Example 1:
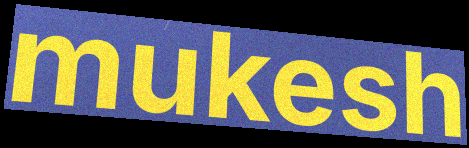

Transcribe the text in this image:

mukesh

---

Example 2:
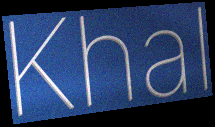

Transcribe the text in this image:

Khal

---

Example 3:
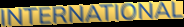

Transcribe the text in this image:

INTERNATIONAL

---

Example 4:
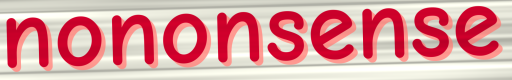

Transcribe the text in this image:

nononsense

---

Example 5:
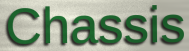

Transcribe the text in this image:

Chassis